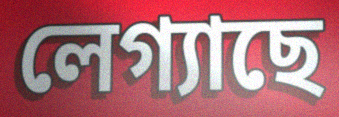
লেগ্যাছে